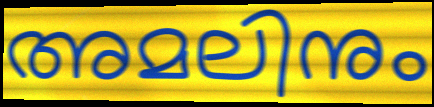
അമലിനും